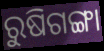
ରୁଷିଗଙ୍ଗା